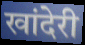
खांदेरी